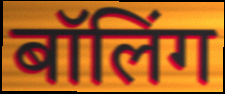
बॉलिंग